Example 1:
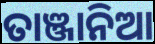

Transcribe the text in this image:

ତାଞ୍ଜାନିଆ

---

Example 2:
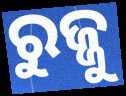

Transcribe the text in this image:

ରୁଜ୍ଜୁ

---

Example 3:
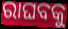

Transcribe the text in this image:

ରାଘବକୁ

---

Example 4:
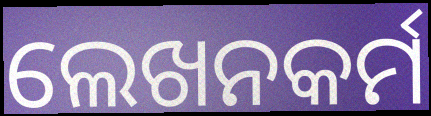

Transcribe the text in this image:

ଲେଖନକର୍ମ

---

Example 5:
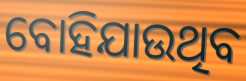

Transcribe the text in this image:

ବୋହିଯାଉଥିବ